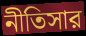
নীতিসার